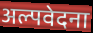
अल्पवेदना